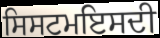
ਸਿਸਟਮਇਸਦੀ